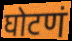
घोटणं